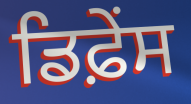
ਡਿਫ਼ੇੰਸ